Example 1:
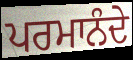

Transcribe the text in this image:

ਪਰਮਾਨੰਦੇ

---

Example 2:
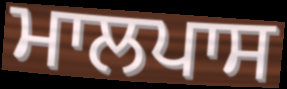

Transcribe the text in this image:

ਮਾਲਪਾਸ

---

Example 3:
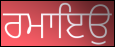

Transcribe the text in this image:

ਰਮਾਇਉ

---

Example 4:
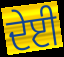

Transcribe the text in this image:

ਦੇਈ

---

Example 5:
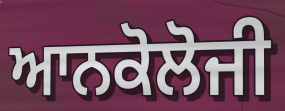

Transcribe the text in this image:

ਆਨਕੋਲੋਜੀ